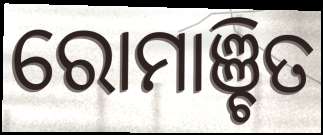
ରୋମାଞ୍ଚିତ